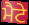
ਮੈਟੇ